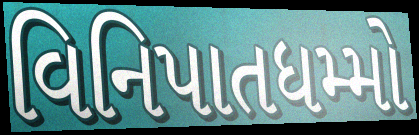
વિનિપાતધમ્મો